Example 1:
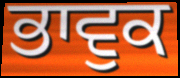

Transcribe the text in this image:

ਭਾਵੁਕ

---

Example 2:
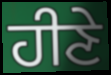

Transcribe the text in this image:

ਹੀਣੇ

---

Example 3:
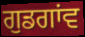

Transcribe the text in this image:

ਗੁਡਗਾਂਵ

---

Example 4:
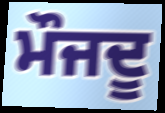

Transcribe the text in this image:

ਮੌਜਦੂ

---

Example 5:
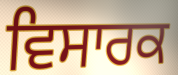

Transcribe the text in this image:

ਵਿਸਾਰਕ